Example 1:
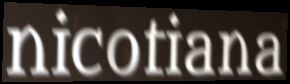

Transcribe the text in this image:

nicotiana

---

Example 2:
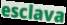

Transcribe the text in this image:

esclava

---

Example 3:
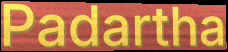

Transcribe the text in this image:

Padartha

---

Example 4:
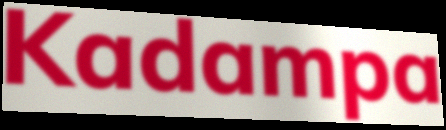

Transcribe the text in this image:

Kadampa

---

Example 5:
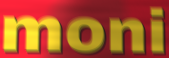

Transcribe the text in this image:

moni